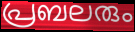
പ്രബലരും